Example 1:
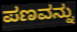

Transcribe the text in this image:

ಪಣವನ್ನು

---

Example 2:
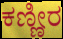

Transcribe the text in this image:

ಕಣ್ಣೀರ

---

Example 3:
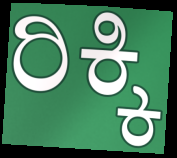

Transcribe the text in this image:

ರಿಕ್ಕಿ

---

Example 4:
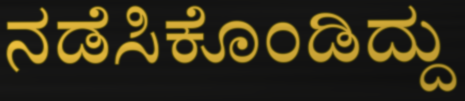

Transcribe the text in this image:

ನಡೆಸಿಕೊಂಡಿದ್ದು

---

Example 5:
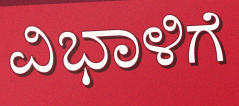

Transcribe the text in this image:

ವಿಭಾಳಿಗೆ